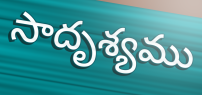
సాదృశ్యము